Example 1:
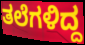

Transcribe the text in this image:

ತಲೆಗಳಿದ್ದ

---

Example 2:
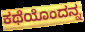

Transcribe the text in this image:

ಕಥೆಯೊಂದನ್ನ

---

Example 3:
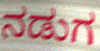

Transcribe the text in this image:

ನಡುಗ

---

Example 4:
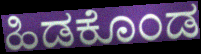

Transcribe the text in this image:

ಹಿಡಕೊಂಡ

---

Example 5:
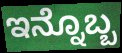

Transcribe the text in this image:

ಇನ್ನೊಬ್ಬ